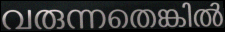
വരുന്നതെങ്കിൽ